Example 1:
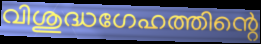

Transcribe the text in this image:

വിശുദ്ധഗേഹത്തിന്റെ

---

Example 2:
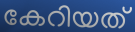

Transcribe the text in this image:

കേറിയത്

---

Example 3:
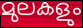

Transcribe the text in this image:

മുലകളും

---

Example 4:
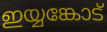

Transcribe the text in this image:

ഇയ്യങ്കോട്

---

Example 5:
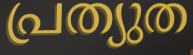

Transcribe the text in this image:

പ്രത്യുത